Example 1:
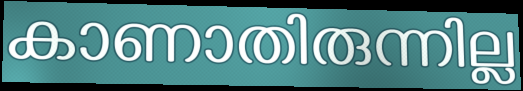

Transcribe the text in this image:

കാണാതിരുന്നില്ല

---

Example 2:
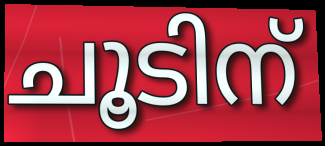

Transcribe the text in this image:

ചൂടിന്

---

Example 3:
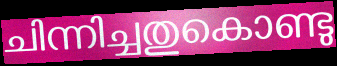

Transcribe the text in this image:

ചിന്നിച്ചതുകൊണ്ടു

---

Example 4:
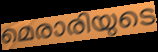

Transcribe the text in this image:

മെരാരിയുടെ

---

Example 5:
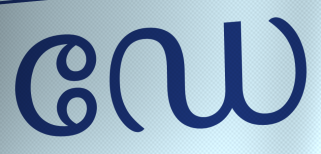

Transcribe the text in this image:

ഡേ